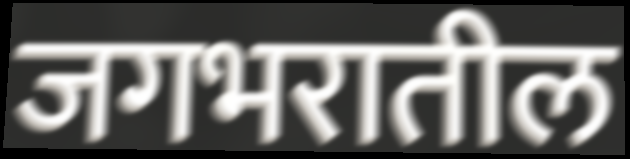
जगभरातील